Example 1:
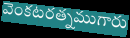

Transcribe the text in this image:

వెంకటరత్నముగారు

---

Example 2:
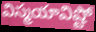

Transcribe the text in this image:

విస్మయావిష్టో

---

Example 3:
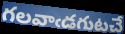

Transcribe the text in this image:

గలవాఁడగుటచే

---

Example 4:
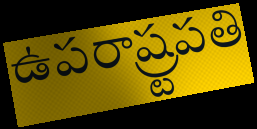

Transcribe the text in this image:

ఉపరాష్ర్టపతి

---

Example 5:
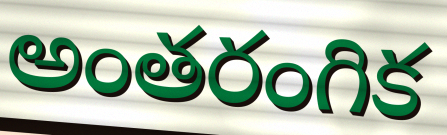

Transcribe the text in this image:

అంతరంగిక